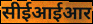
सीईआईआर